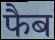
फैब